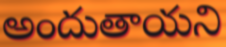
అందుతాయని